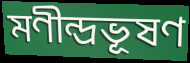
মণীন্দ্রভূষণ